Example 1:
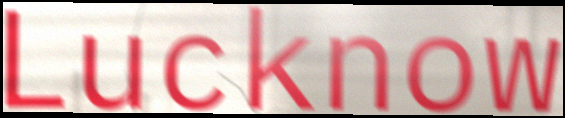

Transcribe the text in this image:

Lucknow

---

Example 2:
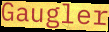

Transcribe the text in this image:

Gaugler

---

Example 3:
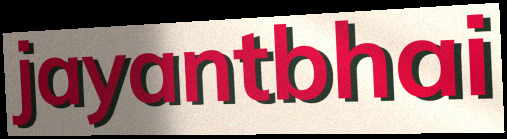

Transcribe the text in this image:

jayantbhai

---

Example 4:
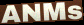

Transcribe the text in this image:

ANMs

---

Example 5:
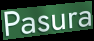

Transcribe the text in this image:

Pasura